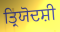
ਤ੍ਰਿਯੋਦਸ਼ੀ